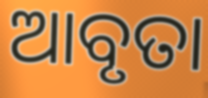
ଆବୃତା